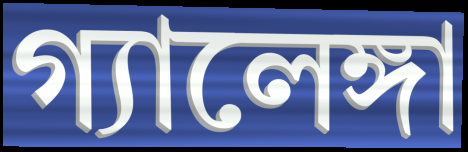
গ্যালেঙ্গা